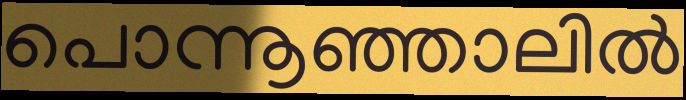
പൊന്നൂഞ്ഞാലിൽ